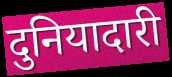
दुनियादारी